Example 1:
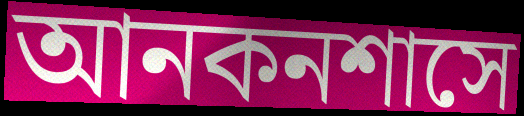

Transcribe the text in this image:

আনকনশাসে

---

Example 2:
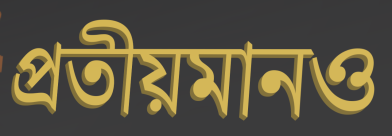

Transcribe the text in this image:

প্রতীয়মানও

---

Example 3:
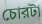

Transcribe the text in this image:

চোরটা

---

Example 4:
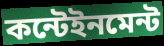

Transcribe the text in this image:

কন্টেইনমেন্ট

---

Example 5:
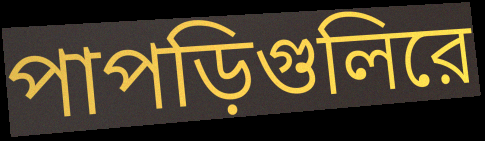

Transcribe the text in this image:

পাপড়িগুলিরে